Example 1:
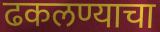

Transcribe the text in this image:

ढकलण्याचा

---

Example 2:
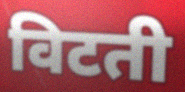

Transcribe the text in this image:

विटती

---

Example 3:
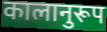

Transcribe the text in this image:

कालानुरूप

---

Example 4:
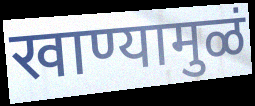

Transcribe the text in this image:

खाण्यामुळं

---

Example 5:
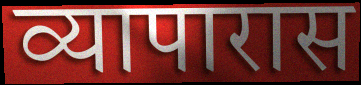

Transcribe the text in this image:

व्यापारास